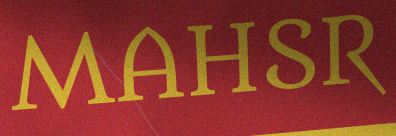
MAHSR